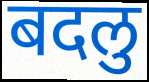
बदलु